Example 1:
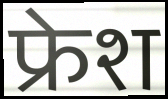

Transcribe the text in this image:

फ्रेश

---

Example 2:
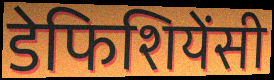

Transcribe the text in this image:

डेफिशियेंसी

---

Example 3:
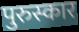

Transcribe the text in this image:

पुरुस्‍कार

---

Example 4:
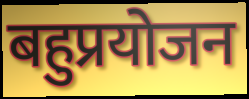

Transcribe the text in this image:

बहुप्रयोजन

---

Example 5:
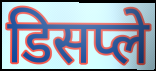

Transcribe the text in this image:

डिसप्ले